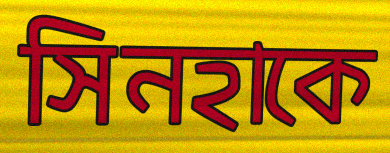
সিনহাকে